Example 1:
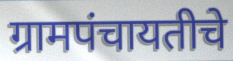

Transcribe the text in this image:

ग्रामपंचायतीचे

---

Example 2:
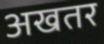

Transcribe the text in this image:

अखतर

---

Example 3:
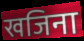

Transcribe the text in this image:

खजिना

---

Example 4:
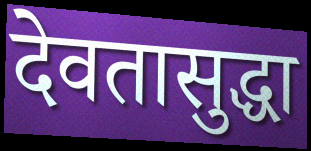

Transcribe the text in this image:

देवतासुद्धा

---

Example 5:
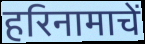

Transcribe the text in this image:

हरिनामाचें